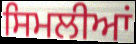
ਸਿਮਲੀਆਂ